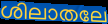
ശിലാതലേ